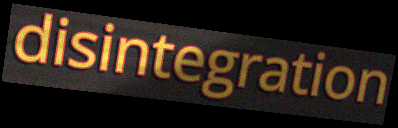
disintegration